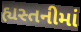
હ્યસ્તનીમાં